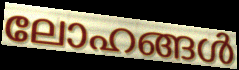
ലോഹങ്ങൾ